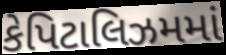
કેપિટાલિઝમમાં